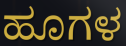
ಹೂಗಳ